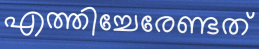
എത്തിച്ചേരേണ്ടത്